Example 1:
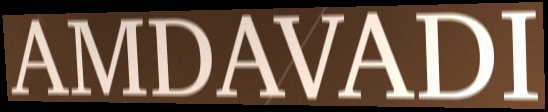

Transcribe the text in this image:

AMDAVADI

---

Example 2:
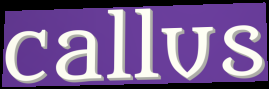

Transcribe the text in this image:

callus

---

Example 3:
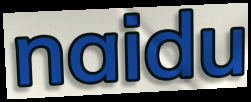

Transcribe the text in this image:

naidu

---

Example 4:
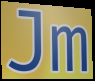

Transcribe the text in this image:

Jm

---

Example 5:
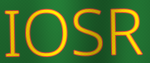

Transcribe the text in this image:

IOSR